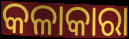
କଳାକାରା